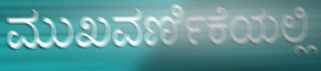
ಮುಖವರ್ಣಿಕೆಯಲ್ಲಿ